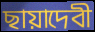
ছায়াদেবী